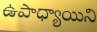
ఉపాధ్యాయిని